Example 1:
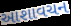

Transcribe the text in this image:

આશાવચન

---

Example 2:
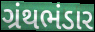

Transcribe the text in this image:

ગ્રંથભંડાર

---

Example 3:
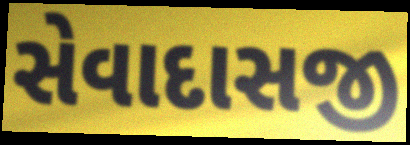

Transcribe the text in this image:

સેવાદાસજી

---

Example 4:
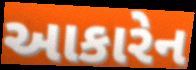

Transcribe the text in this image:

આકારેન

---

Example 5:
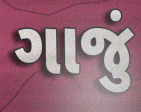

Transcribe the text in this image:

ગાજું